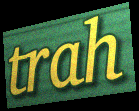
trah